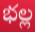
భల్ల